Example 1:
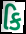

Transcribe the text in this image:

કિ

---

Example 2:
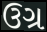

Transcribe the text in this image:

ઉગ્ર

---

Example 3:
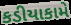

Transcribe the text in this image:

કડીયાકામે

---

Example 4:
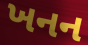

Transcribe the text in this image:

ખનન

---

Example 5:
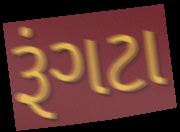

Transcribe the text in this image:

રૂંગટા